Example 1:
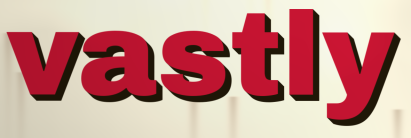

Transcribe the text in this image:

vastly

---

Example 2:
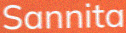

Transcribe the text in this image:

Sannita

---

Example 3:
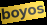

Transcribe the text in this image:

boyos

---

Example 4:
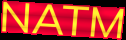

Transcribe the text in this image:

NATM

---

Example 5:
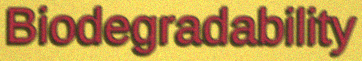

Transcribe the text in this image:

Biodegradability